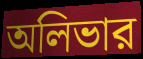
অলিভার